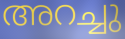
അറച്ചു